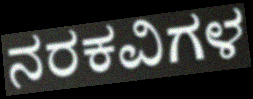
ನರಕವಿಗಳ